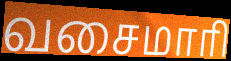
வசைமாரி